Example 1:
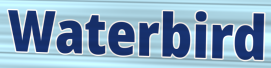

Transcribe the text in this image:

Waterbird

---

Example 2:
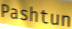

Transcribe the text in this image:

Pashtun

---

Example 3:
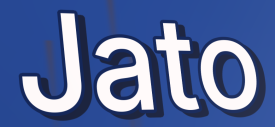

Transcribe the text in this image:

Jato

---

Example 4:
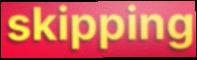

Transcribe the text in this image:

skipping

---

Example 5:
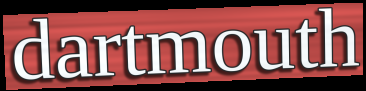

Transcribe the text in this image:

dartmouth